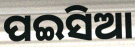
ପଇସିଆ